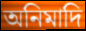
অনিমাদি